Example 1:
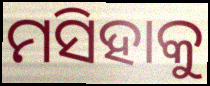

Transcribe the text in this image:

ମସିହାକୁ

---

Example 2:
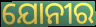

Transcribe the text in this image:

ଯୋନୀର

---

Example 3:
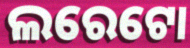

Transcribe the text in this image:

ଲରେଟୋ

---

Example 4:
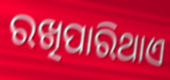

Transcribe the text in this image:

ରଖିପାରିଥାଏ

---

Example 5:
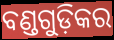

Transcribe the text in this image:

ବଣ୍ଡଗୁଡ଼ିକର